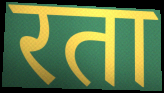
रता